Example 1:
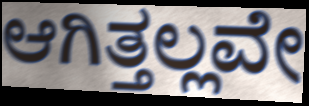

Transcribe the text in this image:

ಆಗಿತ್ತಲ್ಲವೇ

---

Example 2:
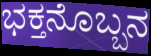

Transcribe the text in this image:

ಭಕ್ತನೊಬ್ಬನ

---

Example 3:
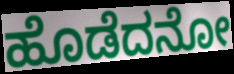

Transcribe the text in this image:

ಹೊಡೆದನೋ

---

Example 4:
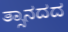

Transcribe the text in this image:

ತ್ಸಾನದದ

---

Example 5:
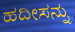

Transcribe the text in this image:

ಹದೀಸನ್ನು